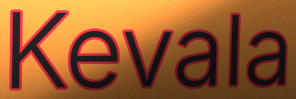
Kevala